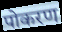
पोकरण